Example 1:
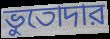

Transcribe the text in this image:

ভুতোদার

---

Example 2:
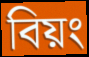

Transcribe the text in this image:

বিয়ং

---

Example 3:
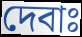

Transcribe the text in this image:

দেবাঃ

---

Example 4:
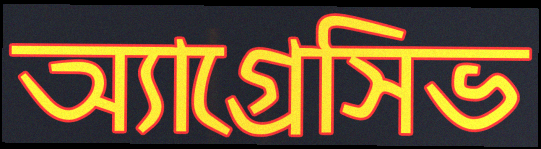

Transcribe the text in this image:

অ্যাগ্রেসিভ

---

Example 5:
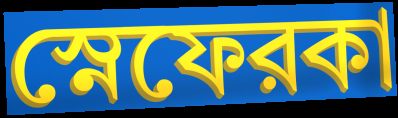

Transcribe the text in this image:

স্নেফেরকা